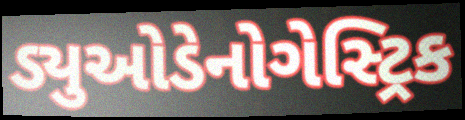
ડ્યુઓડેનોગેસ્ટ્રિક